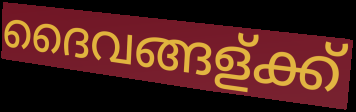
ദൈവങ്ങള്ക്ക്